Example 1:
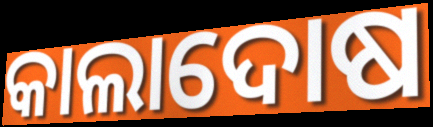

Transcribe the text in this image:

କାଲାଦୋଷ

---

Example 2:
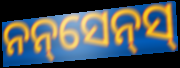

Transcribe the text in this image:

ନନ୍‌ସେନ୍‌ସ୍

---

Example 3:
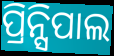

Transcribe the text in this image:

ପ୍ରିନ୍ସିପାଲ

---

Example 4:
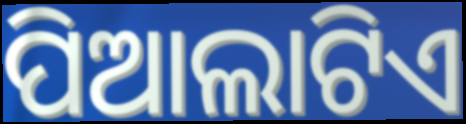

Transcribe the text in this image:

ପିଆଲାଟିଏ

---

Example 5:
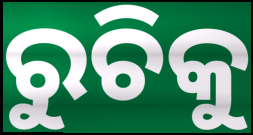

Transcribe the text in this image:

ରୁଚିକୁ